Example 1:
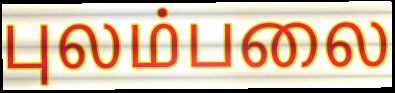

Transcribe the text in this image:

புலம்பலை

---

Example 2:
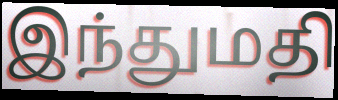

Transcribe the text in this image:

இந்துமதி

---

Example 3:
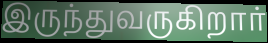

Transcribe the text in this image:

இருந்துவருகிறார்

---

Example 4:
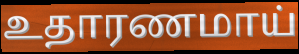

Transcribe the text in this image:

உதாரணமாய்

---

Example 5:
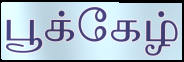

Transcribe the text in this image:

பூக்கேழ்